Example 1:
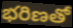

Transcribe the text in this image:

భరిణతో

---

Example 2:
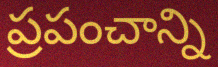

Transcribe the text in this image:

ప్రపంచాన్ని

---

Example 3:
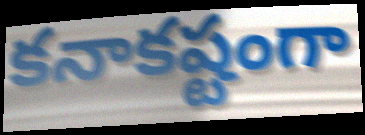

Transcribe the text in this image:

కనాకష్టంగా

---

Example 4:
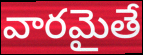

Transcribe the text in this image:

వారమైతే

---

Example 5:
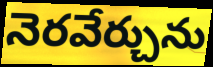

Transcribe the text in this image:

నెరవేర్చును